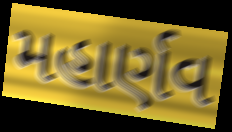
મહાર્ણવ